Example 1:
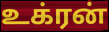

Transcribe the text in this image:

உக்ரன்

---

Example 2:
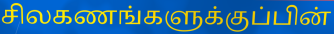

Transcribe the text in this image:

சிலகணங்களுக்குப்பின்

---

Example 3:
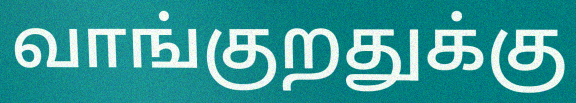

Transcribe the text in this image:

வாங்குறதுக்கு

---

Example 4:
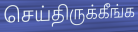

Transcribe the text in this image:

செய்திருக்கீங்க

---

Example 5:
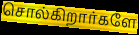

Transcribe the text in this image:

சொல்கிறார்களே